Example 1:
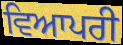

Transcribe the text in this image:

ਵਿਆਪਰੀ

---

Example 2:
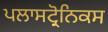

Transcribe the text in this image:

ਪਲਾਸਟ੍ਰੋਨਿਕਸ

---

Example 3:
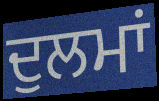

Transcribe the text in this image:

ਦੁਲਮਾਂ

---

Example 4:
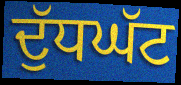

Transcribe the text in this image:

ਦੁੱਧਘੱਟ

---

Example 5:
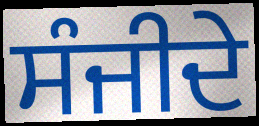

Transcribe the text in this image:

ਸੰਜੀਦੇ